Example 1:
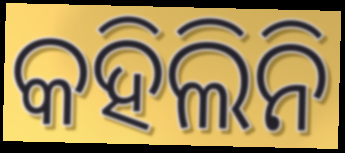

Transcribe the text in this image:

କହିଲିନି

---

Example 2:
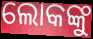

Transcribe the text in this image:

ଲୋକଙ୍କୁ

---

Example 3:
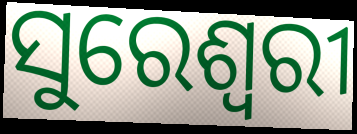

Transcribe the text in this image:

ସୁରେଶ୍ଵରୀ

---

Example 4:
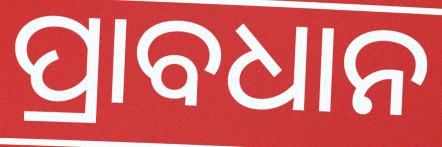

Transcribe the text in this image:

ପ୍ରାବଧାନ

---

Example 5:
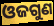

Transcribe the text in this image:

ଓଜଗୁଣ